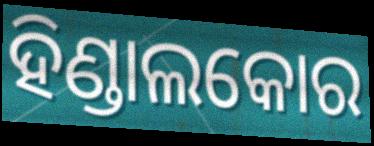
ହିଣ୍ଡାଲକୋର